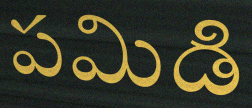
పమిడి